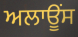
ਅਲਾਊੰਸ